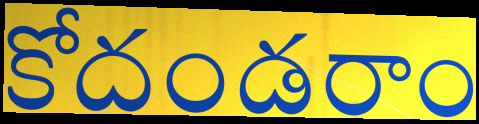
కోదండరాం